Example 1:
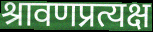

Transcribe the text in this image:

श्रावणप्रत्यक्ष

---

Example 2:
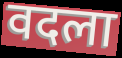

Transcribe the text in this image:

वदला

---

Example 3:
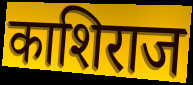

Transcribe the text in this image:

काशिराज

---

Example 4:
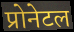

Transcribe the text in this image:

प्रोनेटल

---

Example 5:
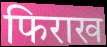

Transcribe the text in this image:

फिराख